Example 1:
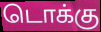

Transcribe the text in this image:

டொக்கு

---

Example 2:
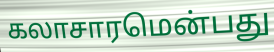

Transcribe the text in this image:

கலாசாரமென்பது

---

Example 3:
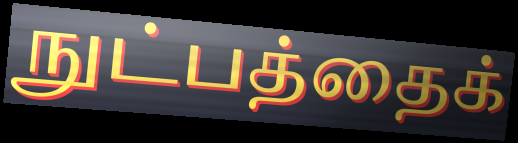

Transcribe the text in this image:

நுட்பத்தைக்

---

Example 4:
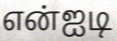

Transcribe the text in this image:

என்ஐடி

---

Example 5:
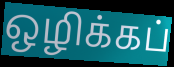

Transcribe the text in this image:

ஒழிக்கப்